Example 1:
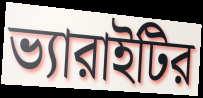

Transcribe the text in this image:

ভ্যারাইটির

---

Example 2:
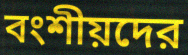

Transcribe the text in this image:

বংশীয়দের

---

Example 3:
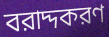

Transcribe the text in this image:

বরাদ্দকরণ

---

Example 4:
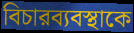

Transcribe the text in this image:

বিচারব্যবস্থাকে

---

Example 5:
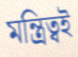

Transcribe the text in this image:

মন্ত্রিত্বই